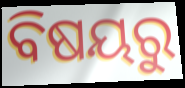
ବିଷୟରୁ